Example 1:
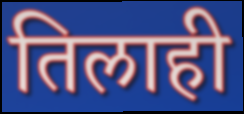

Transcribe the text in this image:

तिलाही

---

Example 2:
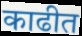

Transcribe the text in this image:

काढीत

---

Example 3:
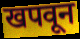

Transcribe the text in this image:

खपवून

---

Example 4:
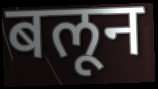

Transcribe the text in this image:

बलून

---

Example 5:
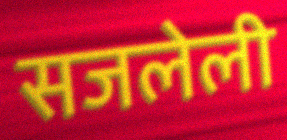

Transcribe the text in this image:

सजलेली